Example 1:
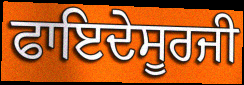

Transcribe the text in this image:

ਫਾਇਦੇਸੂਰਜੀ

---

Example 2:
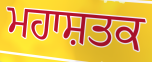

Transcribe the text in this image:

ਮਹਾਸ਼ਤਕ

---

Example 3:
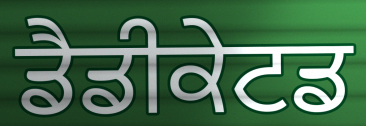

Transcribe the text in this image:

ਡੈਡੀਕੇਟਡ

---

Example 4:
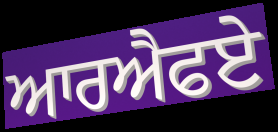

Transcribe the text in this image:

ਆਰਐਫਏ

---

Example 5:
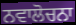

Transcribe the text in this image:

ਨਵਾਲੋਚਨਾ